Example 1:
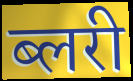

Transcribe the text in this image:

ब्लरी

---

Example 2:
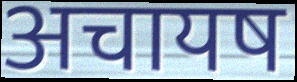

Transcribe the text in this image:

अचायष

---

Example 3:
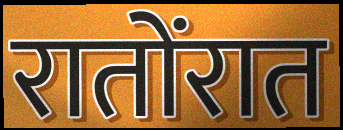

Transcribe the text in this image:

रातोंरात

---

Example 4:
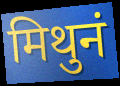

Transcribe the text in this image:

मिथुनं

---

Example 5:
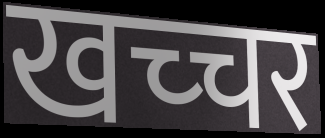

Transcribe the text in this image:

खच्‍चर